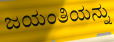
ಜಯಂತಿಯನ್ನು